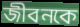
জীবনকে